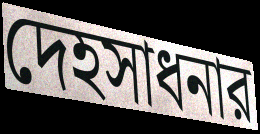
দেহসাধনার